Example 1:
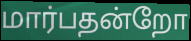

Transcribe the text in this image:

மார்பதன்றோ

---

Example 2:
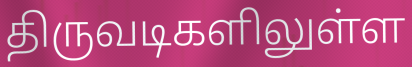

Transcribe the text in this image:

திருவடிகளிலுள்ள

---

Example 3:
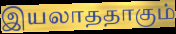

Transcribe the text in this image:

இயலாததாகும்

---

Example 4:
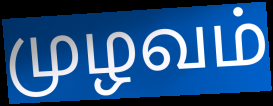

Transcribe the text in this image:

முழவம்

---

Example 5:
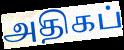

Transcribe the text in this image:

அதிகப்